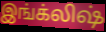
இங்க்லிஷ்